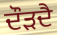
ਦੌੜਦੈ